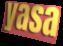
yasa